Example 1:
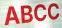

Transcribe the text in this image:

ABCC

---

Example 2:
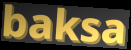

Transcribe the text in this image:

baksa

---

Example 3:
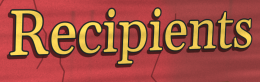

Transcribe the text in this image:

Recipients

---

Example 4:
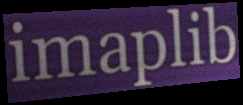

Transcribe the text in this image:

imaplib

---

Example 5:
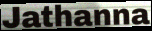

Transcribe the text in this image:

Jathanna